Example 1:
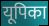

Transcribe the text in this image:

यूपिका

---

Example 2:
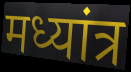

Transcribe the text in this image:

मध्यांत्र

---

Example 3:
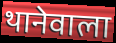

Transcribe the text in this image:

थानेवाला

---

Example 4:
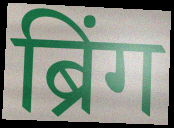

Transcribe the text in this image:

ब्रिंग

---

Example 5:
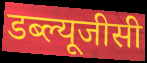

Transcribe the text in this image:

डब्ल्यूजीसी